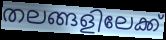
തലങ്ങളിലേക്ക്